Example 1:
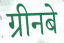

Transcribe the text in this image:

ग्रीनबे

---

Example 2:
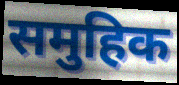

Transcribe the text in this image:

समुहिक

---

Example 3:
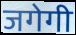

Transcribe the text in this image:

जगेगी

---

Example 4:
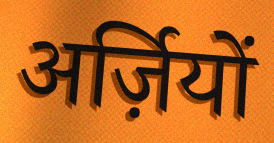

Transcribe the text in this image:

अर्ज़ियों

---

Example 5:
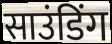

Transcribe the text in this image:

साउंडिंग